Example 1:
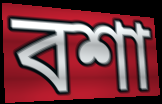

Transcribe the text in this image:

বশা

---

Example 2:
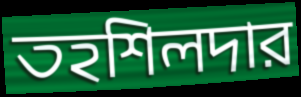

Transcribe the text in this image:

তহশিলদার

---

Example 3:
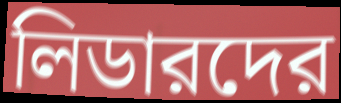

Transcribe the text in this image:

লিডারদের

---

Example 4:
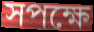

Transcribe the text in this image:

সপক্ষে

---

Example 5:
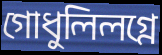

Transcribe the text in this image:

গোধুলিলগ্নে